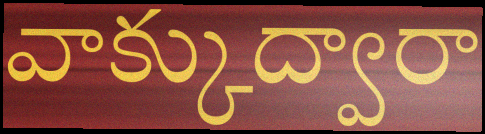
వాక్కుద్వారా